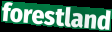
forestland